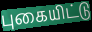
புகையிட்டு